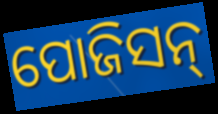
ପୋଜିସନ୍